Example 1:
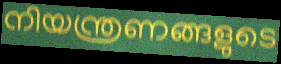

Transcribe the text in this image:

നിയന്ത്രണങ്ങളുടെ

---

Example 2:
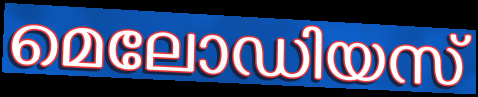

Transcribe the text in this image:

മെലോഡിയസ്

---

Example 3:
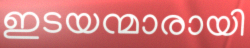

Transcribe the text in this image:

ഇടയന്മാരായി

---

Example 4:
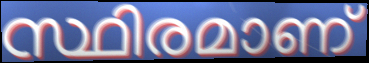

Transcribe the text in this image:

സ്ഥിരമാണ്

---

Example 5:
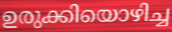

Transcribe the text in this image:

ഉരുക്കിയൊഴിച്ച